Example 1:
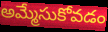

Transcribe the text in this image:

అమ్మేసుకోవడం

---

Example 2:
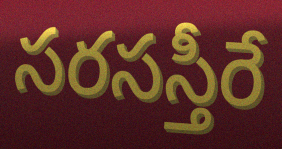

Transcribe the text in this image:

సరసస్తీరే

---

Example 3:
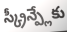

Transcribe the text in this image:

స్క్రీన్ప్లేకు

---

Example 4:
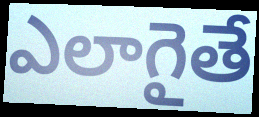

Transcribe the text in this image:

ఎలాగైతే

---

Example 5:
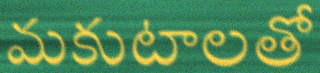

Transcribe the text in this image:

మకుటాలతో